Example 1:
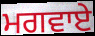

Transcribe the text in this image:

ਮਗਵਾਏ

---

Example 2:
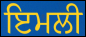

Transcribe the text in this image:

ਇਮਲੀ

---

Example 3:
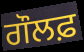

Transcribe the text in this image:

ਗੌਲਫ਼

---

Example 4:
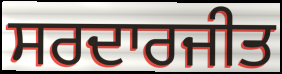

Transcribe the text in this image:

ਸਰਦਾਰਜੀਤ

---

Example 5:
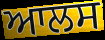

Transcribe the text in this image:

ਆਲਸ